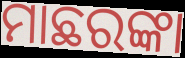
ମାଛରଙ୍କା